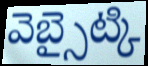
వెబ్సైట్కి